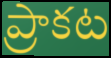
ప్రాకట